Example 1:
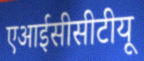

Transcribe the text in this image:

एआईसीसीटीयू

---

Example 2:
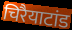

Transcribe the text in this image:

चिरैयाटांड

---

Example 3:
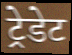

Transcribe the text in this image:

ट्रेडेट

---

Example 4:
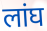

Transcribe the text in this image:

लांघ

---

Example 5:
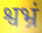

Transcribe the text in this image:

श्वभ्रं